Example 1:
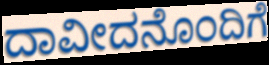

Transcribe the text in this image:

ದಾವೀದನೊಂದಿಗೆ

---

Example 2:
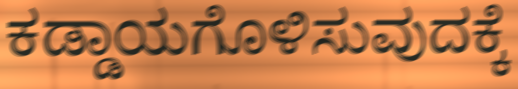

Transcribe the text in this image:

ಕಡ್ಡಾಯಗೊಳಿಸುವುದಕ್ಕೆ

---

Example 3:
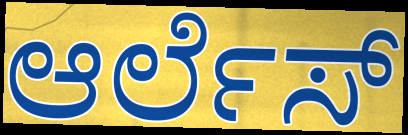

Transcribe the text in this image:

ಆರ್ಲೆಸ್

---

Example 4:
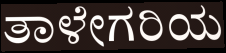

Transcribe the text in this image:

ತಾಳೇಗರಿಯ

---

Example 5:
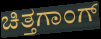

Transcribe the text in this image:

ಚಿತ್ತಗಾಂಗ್